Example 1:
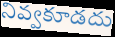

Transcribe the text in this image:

నివ్వకూడదు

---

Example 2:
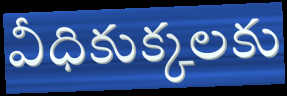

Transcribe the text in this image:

వీధికుక్కలకు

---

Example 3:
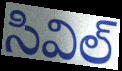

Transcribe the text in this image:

సివిల్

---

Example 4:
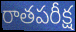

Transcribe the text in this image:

రాతపరీక్ష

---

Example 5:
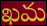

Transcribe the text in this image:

ఖమ